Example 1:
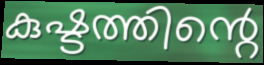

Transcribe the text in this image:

കുഷ്ടത്തിന്റെ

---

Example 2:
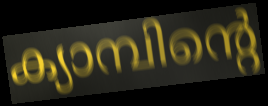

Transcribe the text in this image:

ക്യാമ്പിന്റെ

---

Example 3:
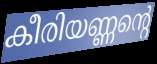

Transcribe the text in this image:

കീരിയണ്ണന്റെ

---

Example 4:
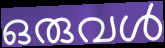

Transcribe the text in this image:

ഒരുവൾ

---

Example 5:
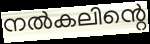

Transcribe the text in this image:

നൽകലിന്റെ